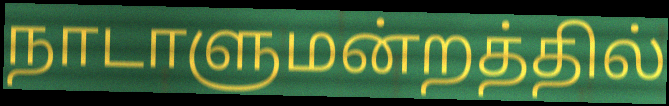
நாடாளுமன்றத்தில்